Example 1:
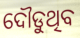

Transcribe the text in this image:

ଦୌଡୁଥିବ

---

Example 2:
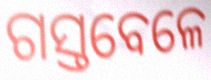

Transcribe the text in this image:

ଗସ୍ତବେଳେ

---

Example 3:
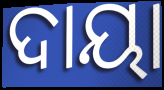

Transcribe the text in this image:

ଦାୟା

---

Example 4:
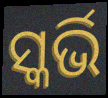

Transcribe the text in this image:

ସ୍କର୍ଭି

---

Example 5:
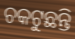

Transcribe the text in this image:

ଚକଟୁଛନ୍ତି